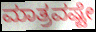
ಮಾತ್ರವಷ್ಟೇ